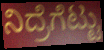
ನಿದ್ರೆಗೆಟ್ಟು